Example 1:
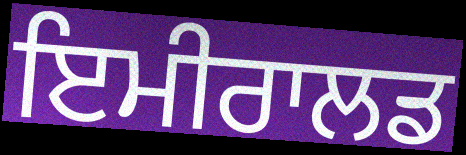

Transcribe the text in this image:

ਇਮੀਰਾਲਡ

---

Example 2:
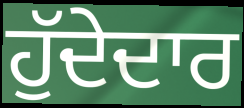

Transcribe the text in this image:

ਹੁੱਦੇਦਾਰ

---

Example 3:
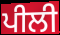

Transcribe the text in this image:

ਪੀਲੀ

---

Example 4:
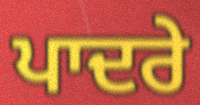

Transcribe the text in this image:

ਪਾਦਰੇ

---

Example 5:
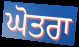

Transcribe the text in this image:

ਘੋਤਰਾ